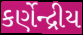
કર્ણેન્દ્રીય